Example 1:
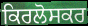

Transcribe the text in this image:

ਕਿਰਲੋਸਕਰ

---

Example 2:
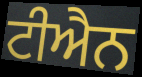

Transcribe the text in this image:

ਟੀਐਨ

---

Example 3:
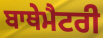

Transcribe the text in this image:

ਬਾਥੇਮੈਟਰੀ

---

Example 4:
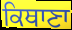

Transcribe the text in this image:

ਕਿਥਾਣਾ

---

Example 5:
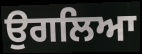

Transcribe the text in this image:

ਉਗਲਿਆ